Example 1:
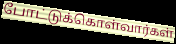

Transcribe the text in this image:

போட்டுக்கொள்வார்கள்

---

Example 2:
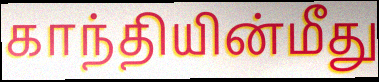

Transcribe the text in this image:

காந்தியின்மீது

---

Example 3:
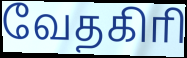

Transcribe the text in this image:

வேதகிரி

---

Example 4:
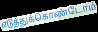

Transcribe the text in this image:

எடுத்துக்கொண்டோம்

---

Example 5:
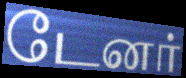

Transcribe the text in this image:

டேனர்